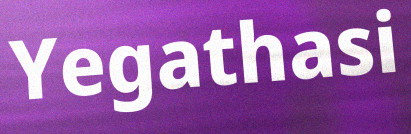
Yegathasi